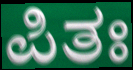
ಪಿತಃ